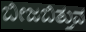
ಬೀಜಬಿತ್ತುವ